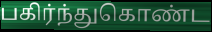
பகிர்ந்துகொண்ட